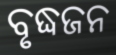
ବୃଦ୍ଧଜନ